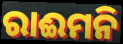
ରାଈମନି